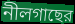
নীলগাছের